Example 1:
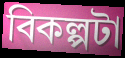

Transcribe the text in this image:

বিকল্পটা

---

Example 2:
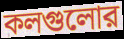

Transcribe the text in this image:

কলগুলোর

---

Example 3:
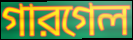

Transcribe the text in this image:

গারগেল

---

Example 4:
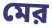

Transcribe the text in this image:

মের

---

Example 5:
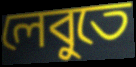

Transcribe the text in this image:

লেবুতে